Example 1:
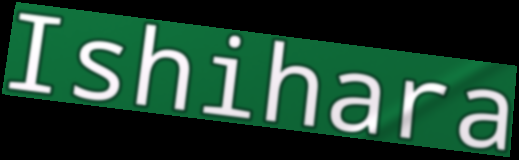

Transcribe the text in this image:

Ishihara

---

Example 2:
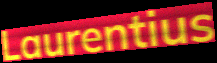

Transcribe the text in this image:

Laurentius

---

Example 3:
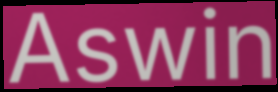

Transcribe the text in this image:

Aswin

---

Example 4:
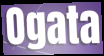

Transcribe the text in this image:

Ogata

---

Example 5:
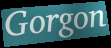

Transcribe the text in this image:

Gorgon